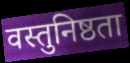
वस्तुनिष्ठता